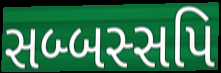
સબ્બસ્સપિ